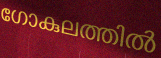
ഗോകുലത്തിൽ